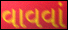
વાવવાં